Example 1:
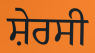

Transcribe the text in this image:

ਸ਼ੇਰਸੀ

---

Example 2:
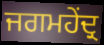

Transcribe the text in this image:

ਜਗਮਹੇਂਦ੍ਰ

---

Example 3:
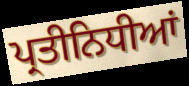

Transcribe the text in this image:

ਪ੍ਰਤੀਨਿਧੀਆਂ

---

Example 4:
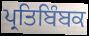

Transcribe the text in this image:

ਪ੍ਰਤਿਬਿੰਬਕ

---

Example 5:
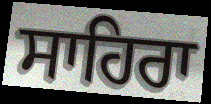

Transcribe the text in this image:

ਸਾਹਿਰਾ